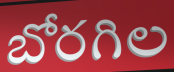
బోరగిల